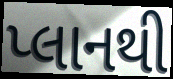
પ્લાનથી